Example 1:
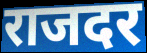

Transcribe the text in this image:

राजदर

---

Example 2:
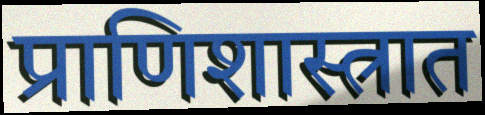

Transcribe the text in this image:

प्राणिशास्त्रात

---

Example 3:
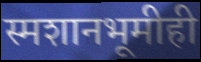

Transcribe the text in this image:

स्मशानभूमीही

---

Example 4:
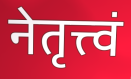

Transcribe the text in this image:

नेतृत्त्वं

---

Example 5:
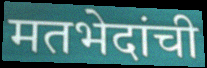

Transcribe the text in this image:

मतभेदांची